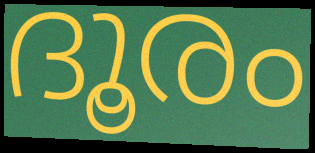
ദൂരം